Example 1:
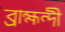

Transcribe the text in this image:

ব্রাহ্মন্দী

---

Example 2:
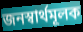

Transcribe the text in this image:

জনস্বার্থমূলক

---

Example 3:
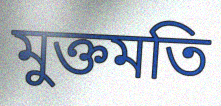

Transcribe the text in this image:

মুক্তমতি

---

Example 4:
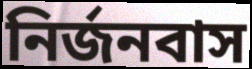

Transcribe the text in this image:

নির্জনবাস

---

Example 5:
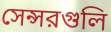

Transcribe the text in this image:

সেন্সরগুলি